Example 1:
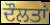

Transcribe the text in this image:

ਦੌਲਤਾਂ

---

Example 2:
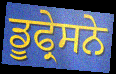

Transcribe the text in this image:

ਡੂਫ੍ਰੇਸਨੇ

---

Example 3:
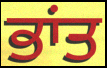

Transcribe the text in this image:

ਭਾਂਤ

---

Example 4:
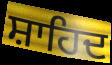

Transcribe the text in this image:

ਸ਼ਾਹਿਦ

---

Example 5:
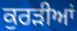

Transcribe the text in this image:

ਕੁਰੜੀਆਂ